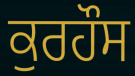
ਕੁਰਹੌਸ